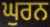
ਘੁਰਨ